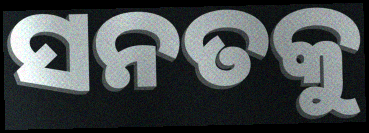
ସନତକୁ